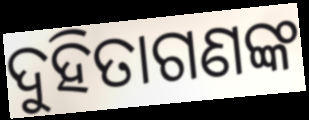
ଦୁହିତାଗଣଙ୍କ